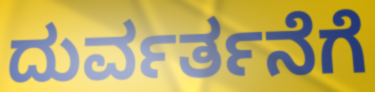
ದುರ್ವರ್ತನೆಗೆ